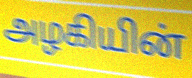
அழகியின்